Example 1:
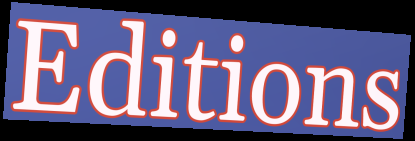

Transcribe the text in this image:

Editions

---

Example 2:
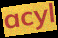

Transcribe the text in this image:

acyl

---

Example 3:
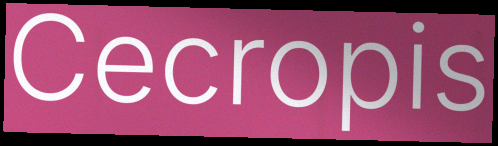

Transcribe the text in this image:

Cecropis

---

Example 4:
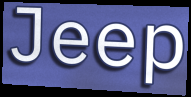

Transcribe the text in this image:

Jeep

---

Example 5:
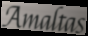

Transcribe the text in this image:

Amaltas